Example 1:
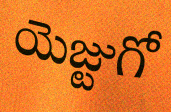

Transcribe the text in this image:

యెజ్టుగో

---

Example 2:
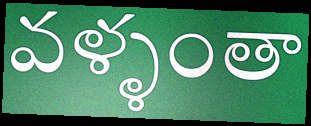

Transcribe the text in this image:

వళ్ళంతా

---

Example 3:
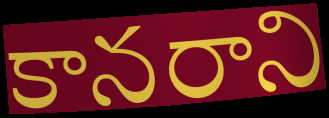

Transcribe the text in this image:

కానరాని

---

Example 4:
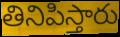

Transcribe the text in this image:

తినిపిస్తారు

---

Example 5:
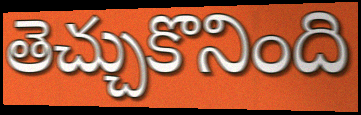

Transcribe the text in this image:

తెచ్చుకొనింది